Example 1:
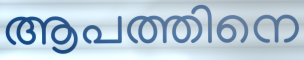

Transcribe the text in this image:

ആപത്തിനെ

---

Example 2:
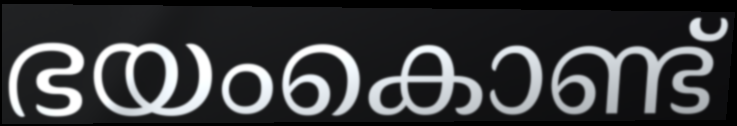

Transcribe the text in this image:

ഭയംകൊണ്ട്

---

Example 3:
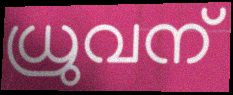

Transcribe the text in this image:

ധ്രുവന്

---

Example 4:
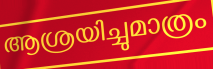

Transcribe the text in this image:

ആശ്രയിച്ചുമാത്രം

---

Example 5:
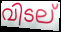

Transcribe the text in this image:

വിടല്